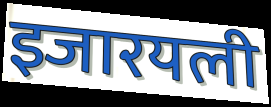
इजारयली